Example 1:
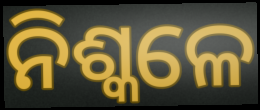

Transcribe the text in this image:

ନିଶ୍କଳେ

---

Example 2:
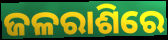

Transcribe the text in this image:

ଜଳରାଶିରେ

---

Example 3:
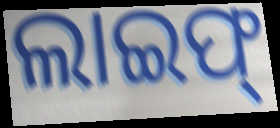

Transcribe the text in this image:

ଲାଇଫ୍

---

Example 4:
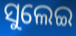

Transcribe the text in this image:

ସୁଲେଇ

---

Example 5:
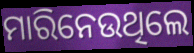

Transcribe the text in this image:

ମାରିନେଉଥିଲେ